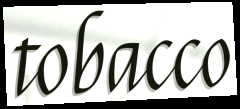
tobacco